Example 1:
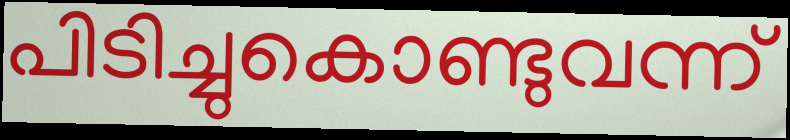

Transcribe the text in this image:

പിടിച്ചുകൊണ്ടുവന്ന്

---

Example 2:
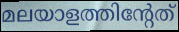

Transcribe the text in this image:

മലയാളത്തിന്റേത്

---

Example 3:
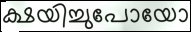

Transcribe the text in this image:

ക്ഷയിച്ചുപോയോ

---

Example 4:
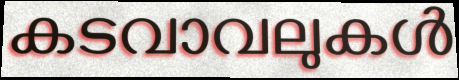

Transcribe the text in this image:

കടവാവലുകൾ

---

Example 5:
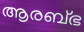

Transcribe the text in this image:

ആരബ്ഭ